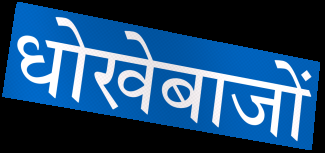
धोखेबाजों